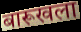
बारूखला